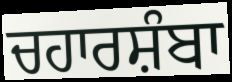
ਚਹਾਰਸ਼ੰਬਾ